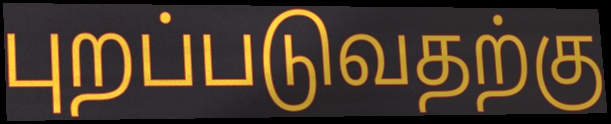
புறப்படுவதற்கு